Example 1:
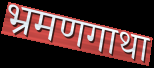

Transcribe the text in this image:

भ्रमणगाथा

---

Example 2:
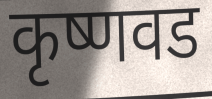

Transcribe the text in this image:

कृष्णवड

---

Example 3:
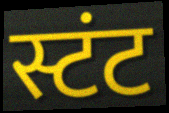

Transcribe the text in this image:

स्टंट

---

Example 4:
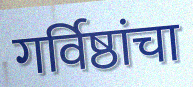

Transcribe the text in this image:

गर्विष्ठांचा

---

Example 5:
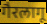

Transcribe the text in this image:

गैरलागू